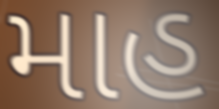
માહ